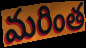
మరింత